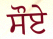
ਸੌਏ